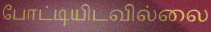
போட்டியிடவில்லை